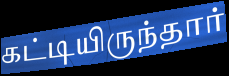
கட்டியிருந்தார்